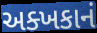
અક્ખકાનં